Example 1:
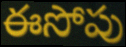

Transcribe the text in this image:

ఈసోపు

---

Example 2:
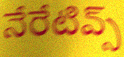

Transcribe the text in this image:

నేరేటివ్స్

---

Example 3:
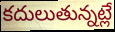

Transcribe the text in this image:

కదులుతున్నట్లే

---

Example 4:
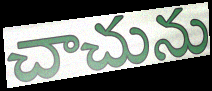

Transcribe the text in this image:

చాచును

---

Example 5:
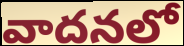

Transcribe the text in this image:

వాదనలో